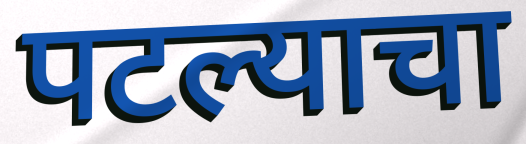
पटल्याचा